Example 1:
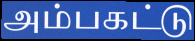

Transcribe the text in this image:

அம்பகட்டு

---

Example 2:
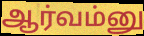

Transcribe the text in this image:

ஆர்வம்னு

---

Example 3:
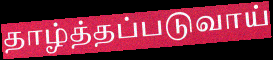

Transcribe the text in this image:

தாழ்த்தப்படுவாய்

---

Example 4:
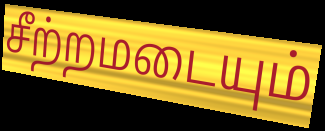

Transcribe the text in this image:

சீற்றமடையும்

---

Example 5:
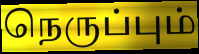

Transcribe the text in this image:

நெருப்பும்